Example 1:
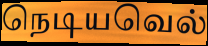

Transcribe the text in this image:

நெடியவெல்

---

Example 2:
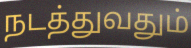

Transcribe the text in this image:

நடத்துவதும்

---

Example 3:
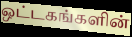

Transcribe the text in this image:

ஒட்டகங்களின்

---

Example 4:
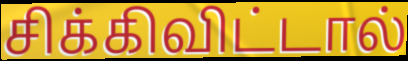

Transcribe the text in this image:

சிக்கிவிட்டால்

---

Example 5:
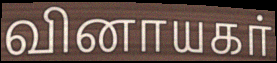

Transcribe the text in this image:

வினாயகர்